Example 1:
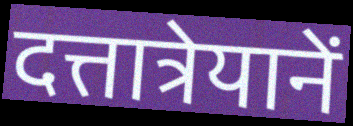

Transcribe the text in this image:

दत्तात्रेयानें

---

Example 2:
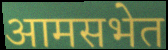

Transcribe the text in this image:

आमसभेत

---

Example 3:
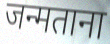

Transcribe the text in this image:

जन्मताना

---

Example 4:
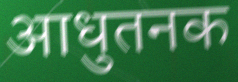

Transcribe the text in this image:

आधुतनक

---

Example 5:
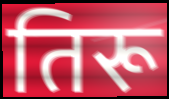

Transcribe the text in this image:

तिरू